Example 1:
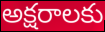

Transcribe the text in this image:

అక్షరాలకు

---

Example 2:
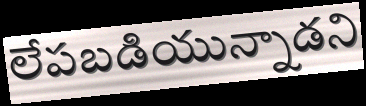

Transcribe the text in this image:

లేపబడియున్నాడని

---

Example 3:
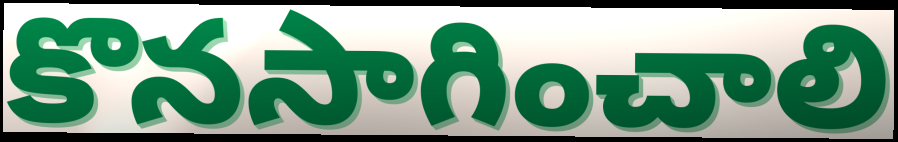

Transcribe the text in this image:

కొనసాగించాలి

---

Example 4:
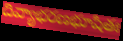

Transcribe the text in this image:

దివ్యాభరణభూషితః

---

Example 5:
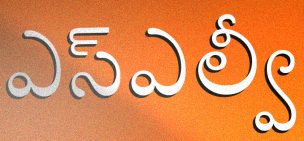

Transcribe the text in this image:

ఎస్ఎల్వీ